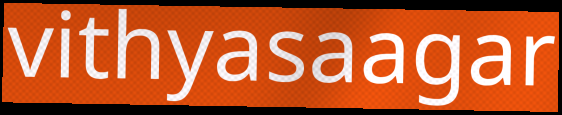
vithyasaagar